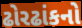
ઢોરઢાંકનો